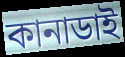
কানাডাই